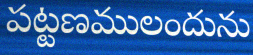
పట్టణములందును